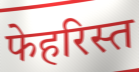
फेहरिस्‍त